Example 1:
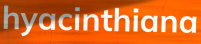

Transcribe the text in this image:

hyacinthiana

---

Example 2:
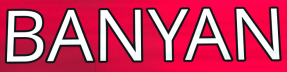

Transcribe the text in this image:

BANYAN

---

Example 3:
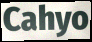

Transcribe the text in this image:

Cahyo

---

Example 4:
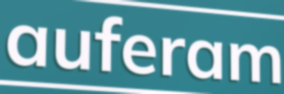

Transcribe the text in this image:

auferam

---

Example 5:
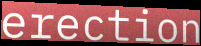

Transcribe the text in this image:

erection